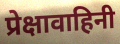
प्रेक्षावाहिनी